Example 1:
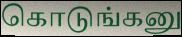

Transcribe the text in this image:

கொடுங்கனு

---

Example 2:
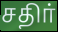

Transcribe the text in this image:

சதிர்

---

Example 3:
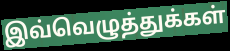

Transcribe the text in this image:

இவ்வெழுத்துக்கள்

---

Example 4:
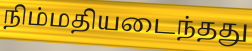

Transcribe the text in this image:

நிம்மதியடைந்தது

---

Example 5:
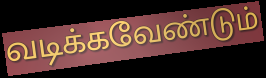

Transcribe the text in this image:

வடிக்கவேண்டும்